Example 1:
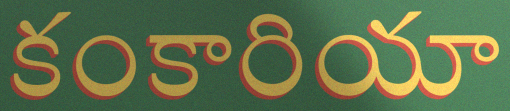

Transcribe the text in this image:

కంకారియా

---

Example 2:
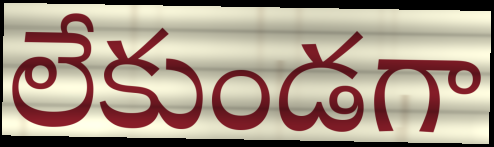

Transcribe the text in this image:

లేకుండగా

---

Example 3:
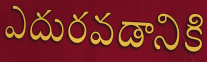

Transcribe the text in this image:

ఎదురవడానికి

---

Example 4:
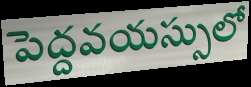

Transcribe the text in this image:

పెద్దవయస్సులో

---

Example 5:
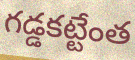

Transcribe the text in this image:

గడ్డకట్టేంత